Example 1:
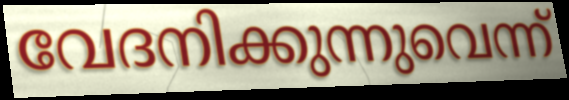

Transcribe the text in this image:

വേദനിക്കുന്നുവെന്ന്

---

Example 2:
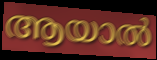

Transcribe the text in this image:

ആയാൽ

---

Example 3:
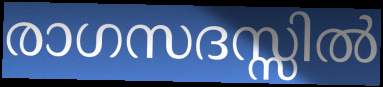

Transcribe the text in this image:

രാഗസദസ്സിൽ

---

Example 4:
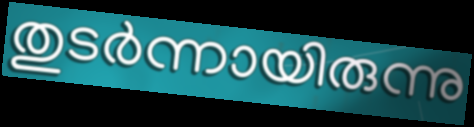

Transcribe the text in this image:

തുടർന്നായിരുന്നു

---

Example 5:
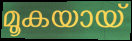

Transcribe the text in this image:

മൂകയായ്